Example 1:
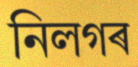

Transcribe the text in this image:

নিলগৰ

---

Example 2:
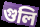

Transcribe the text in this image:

গুলি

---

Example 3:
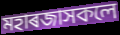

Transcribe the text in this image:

মহাৰজাসকলে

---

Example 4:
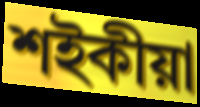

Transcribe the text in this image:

শইকীয়া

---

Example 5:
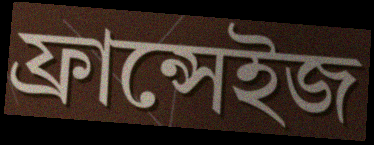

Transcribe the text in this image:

ফ্ৰান্সেইজ